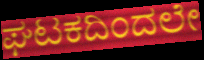
ಘಟಕದಿಂದಲೇ